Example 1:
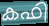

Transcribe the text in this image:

കഫി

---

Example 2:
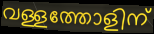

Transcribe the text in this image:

വള്ളത്തോളിന്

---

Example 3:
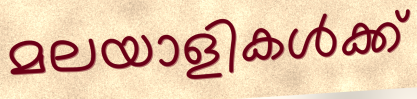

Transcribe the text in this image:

മലയാളികൾക്ക്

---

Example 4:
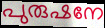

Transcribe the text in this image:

പുരുഷനേ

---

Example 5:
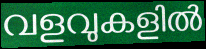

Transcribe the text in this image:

വളവുകളിൽ